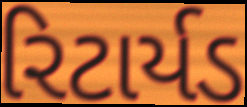
રિટાર્યડ